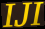
IJI